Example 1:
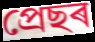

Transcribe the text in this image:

প্ৰেছৰ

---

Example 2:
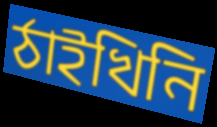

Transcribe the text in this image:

ঠাইখিনি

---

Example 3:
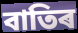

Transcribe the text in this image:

বাতিৰ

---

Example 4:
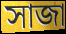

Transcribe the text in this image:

সাজা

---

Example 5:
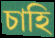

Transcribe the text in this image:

চাহি